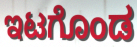
ಇಟಗೊಂಡ